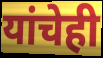
यांचेही